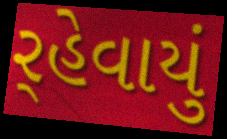
ર્‌હેવાયું